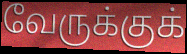
வேருக்குக்